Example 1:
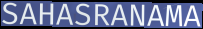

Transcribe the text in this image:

SAHASRANAMA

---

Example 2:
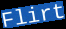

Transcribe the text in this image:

Flirt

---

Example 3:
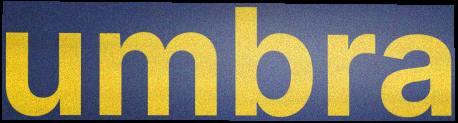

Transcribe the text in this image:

umbra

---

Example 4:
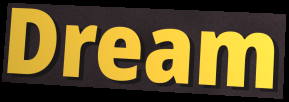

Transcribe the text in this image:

Dream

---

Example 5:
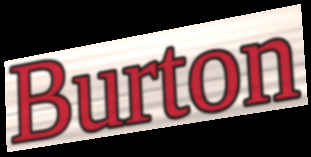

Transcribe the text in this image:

Burton